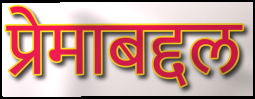
प्रेमाबद्दल